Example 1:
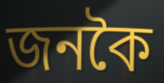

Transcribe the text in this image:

জনকৈ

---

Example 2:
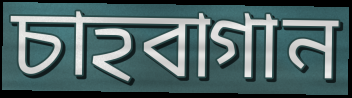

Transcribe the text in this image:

চাহবাগান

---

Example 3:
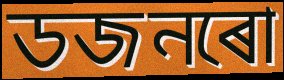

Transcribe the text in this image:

ডজনৰো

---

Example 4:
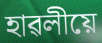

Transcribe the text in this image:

হাৱলীয়ে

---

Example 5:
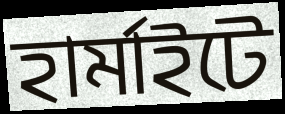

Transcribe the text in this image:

হাৰ্মাইটে